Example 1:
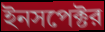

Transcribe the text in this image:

ইনসপেক্টর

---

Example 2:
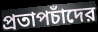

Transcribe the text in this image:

প্রতাপচাঁদের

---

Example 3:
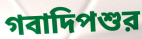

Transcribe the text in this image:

গবাদিপশুর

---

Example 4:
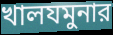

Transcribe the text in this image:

খালযমুনার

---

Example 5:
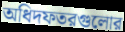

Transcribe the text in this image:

অধিদফতরগুলোর